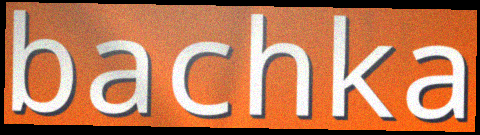
bachka